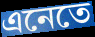
এনেতে